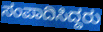
ಸಂಪಾದಿಸಿದ್ದರು